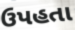
ઉપહતા